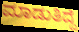
ಮಾಡುತಿದ್ದೆ